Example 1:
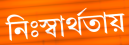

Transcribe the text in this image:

নিঃস্বার্থতায়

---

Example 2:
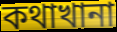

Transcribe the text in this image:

কথাখানা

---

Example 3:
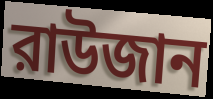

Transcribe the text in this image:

রাউজান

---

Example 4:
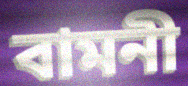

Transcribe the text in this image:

বামনী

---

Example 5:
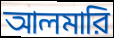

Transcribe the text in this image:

আলমারি